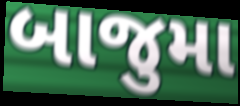
બાજુમા